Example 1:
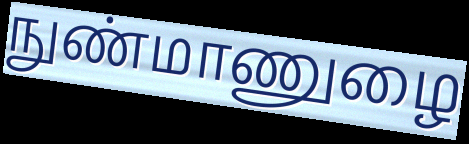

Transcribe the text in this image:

நுண்மாணுழை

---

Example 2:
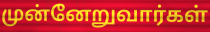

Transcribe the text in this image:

முன்னேறுவார்கள்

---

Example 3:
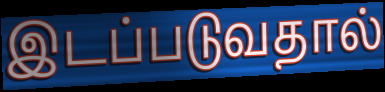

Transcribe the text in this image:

இடப்படுவதால்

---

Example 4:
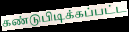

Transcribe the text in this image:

கண்டுபிடிக்கப்பட்ட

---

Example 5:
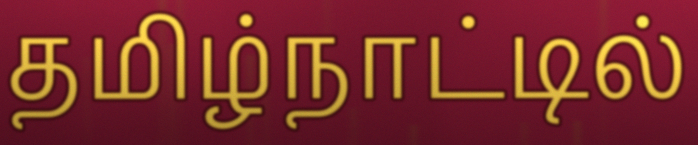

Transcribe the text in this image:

தமிழ்நாட்டில்